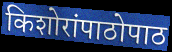
किशोरांपाठोपाठ